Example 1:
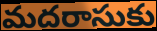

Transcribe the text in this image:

మదరాసుకు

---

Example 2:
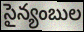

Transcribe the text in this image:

సైన్యంబుల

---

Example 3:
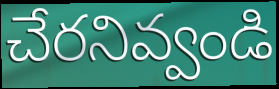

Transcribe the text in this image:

చేరనివ్వండి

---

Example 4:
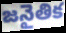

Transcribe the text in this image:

జనైతిక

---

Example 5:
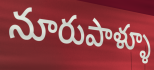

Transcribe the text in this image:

నూరుపాళ్ళూ